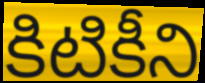
కిటికీని